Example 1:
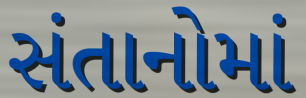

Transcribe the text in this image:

સંતાનોમાં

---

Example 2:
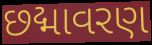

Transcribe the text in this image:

છદ્માવરણ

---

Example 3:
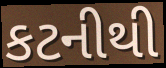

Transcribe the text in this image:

કટનીથી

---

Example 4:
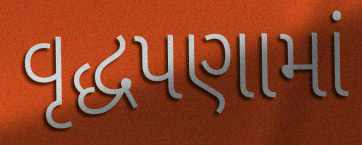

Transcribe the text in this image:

વૃદ્ધપણામાં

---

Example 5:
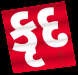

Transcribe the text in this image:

કૃદ